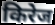
किरेज